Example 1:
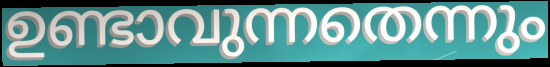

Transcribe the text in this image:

ഉണ്ടാവുന്നതെന്നും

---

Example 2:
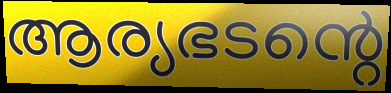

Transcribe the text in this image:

ആര്യഭടന്റെ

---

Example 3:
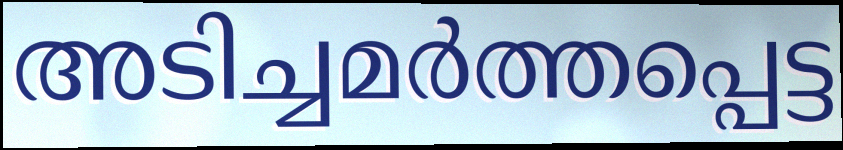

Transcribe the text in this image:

അടിച്ചമർത്തപ്പെട്ട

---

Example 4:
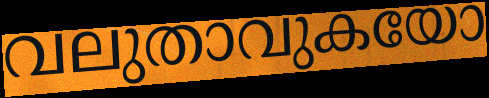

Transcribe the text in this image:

വലുതാവുകയോ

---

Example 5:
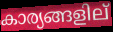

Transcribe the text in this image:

കാര്യങ്ങളില്